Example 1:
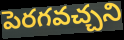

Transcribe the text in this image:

పెరగవచ్చని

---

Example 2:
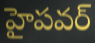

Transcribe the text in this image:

హైపవర్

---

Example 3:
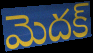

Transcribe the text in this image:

మెదక్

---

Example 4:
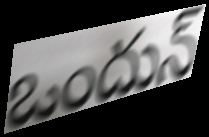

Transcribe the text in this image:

ఒందున్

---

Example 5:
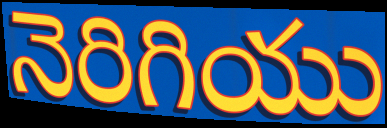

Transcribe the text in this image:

నెరిగియు